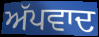
ਅੱਪਵਾਦ